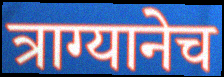
त्राग्यानेच